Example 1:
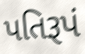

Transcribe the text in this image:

પતિરૂપં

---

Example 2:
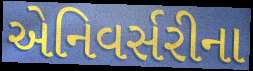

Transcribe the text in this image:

એનિવર્સરીના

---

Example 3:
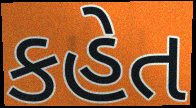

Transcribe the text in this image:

કહેત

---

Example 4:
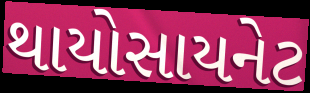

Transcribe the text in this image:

થાયોસાયનેટ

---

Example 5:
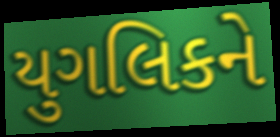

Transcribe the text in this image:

યુગલિકને